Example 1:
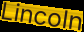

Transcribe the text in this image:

Lincoln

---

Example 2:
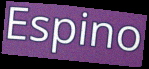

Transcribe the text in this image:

Espino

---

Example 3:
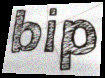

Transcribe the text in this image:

bip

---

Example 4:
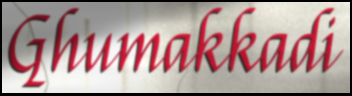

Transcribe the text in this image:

Ghumakkadi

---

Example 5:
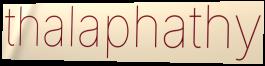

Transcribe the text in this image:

thalaphathy